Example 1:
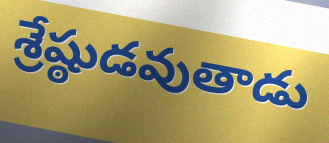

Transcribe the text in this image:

శ్రేష్ఠుడవుతాడు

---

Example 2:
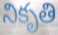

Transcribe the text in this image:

నికృతి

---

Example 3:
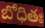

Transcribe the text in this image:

బోధితః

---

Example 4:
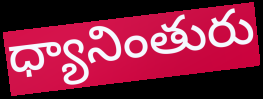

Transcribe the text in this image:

ధ్యానింతురు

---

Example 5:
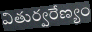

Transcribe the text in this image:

వితుర్వరేణ్యం